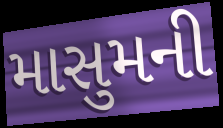
માસુમની